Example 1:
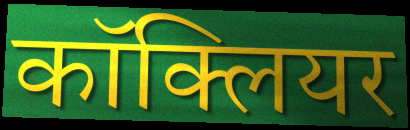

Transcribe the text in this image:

कॉक्लियर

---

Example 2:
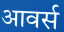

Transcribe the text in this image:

आवर्स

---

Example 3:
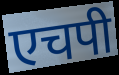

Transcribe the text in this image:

एचपी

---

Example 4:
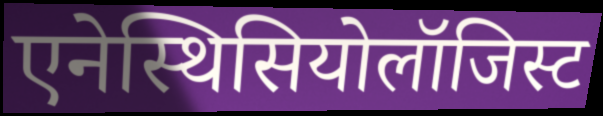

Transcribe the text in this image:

एनेस्थिसियोलॉजिस्ट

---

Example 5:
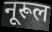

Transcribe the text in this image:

नूरूल